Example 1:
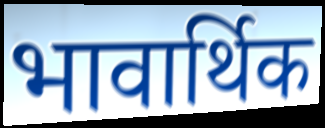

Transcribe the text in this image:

भावार्थिक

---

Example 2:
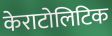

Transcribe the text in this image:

केराटोलिटिक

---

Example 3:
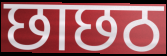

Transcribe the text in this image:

छाछठ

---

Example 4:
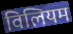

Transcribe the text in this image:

विलियम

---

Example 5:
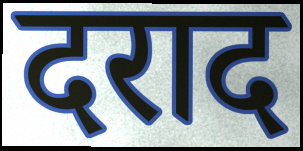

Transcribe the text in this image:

दराद